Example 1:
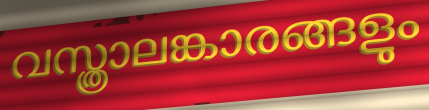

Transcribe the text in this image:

വസ്ത്രാലങ്കാരങ്ങളും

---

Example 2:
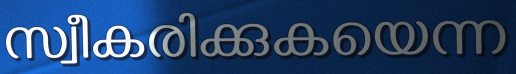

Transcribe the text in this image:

സ്വീകരിക്കുകയെന്ന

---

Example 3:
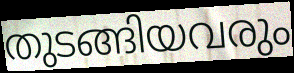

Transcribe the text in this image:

തുടങ്ങിയവരും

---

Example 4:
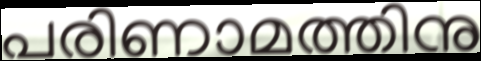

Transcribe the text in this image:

പരിണാമത്തിനു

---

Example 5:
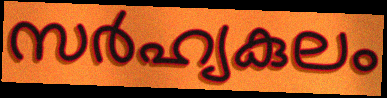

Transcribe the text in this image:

സർഹ്യകുലം